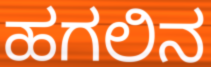
ಹಗಲಿನ